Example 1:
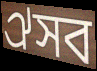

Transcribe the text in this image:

ঐসব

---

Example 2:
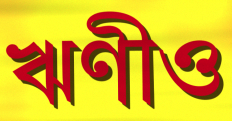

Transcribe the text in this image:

ঋণীও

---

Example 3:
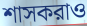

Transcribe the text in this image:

শাসকরাও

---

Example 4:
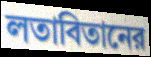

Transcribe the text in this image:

লতাবিতানের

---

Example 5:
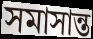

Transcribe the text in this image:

সমাসান্ত